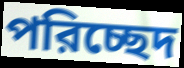
পরিচ্ছেদ